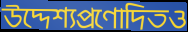
উদ্দেশ্যপ্রণোদিতও